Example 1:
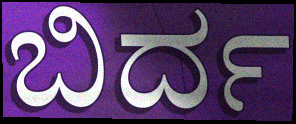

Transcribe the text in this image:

ಬಿರ್ದ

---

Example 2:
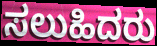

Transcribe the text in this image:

ಸಲುಹಿದರು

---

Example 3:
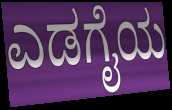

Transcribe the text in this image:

ಎಡಗೈಯ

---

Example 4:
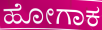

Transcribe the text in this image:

ಹೋಗಾಕ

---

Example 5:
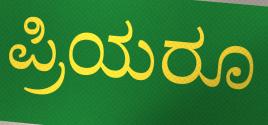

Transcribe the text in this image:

ಪ್ರಿಯರೂ